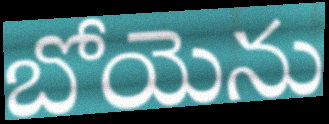
బోయెను